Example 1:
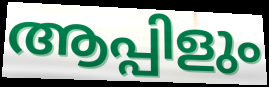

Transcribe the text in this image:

ആപ്പിളും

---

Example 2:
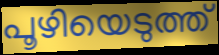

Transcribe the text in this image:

പൂഴിയെടുത്ത്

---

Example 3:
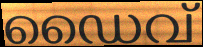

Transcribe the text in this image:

ഡൈവ്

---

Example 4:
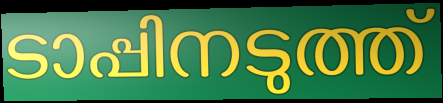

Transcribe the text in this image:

ടാപ്പിനടുത്ത്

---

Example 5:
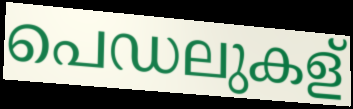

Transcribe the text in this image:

പെഡലുകള്